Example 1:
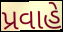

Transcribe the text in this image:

પ્રવાહે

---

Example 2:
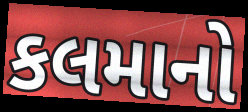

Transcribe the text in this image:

કલમાનો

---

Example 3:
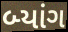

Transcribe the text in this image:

બ્યાંગ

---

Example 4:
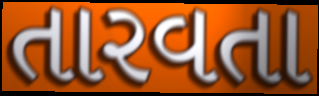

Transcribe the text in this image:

તારવતા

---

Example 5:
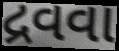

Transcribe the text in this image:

દ્રવવા